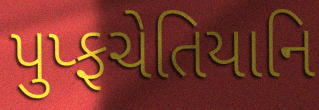
પુપ્ફચેતિયાનિ